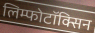
लिम्फोटॉक्सिन